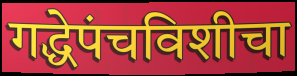
गद्धेपंचविशीचा